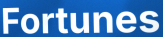
Fortunes